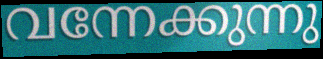
വന്നേക്കുന്നു